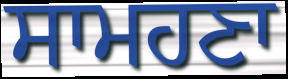
ਸਾਮਹਣਾ